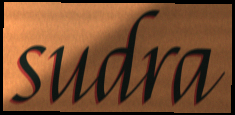
sudra